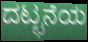
ದಟ್ಟನೆಯ